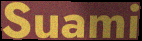
Suami